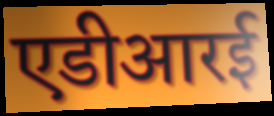
एडीआरई